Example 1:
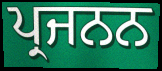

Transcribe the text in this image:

ਪ੍ਰਜਨਨ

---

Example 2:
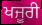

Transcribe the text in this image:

ਖਜੂਰੀ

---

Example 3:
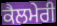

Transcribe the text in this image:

ਕੈਲਮੇਰੀ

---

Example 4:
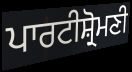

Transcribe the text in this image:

ਪਾਰਟੀਸ਼੍ਰੋਮਣੀ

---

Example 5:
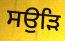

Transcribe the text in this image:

ਸਉੜਿ